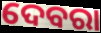
ଦେବରା